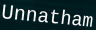
Unnatham